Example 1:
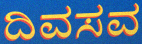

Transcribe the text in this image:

ದಿವಸವ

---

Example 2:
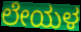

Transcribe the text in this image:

ಲೇಯಳ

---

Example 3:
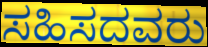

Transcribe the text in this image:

ಸಹಿಸದವರು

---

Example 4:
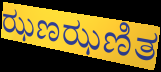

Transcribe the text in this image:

ಝಣಝಣಿತ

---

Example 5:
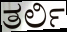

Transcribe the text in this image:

ತರ್ಲಿ